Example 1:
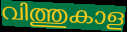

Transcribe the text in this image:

വിത്തുകാള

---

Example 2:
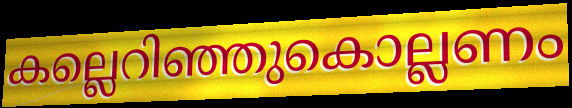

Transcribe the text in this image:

കല്ലെറിഞ്ഞുകൊല്ലണം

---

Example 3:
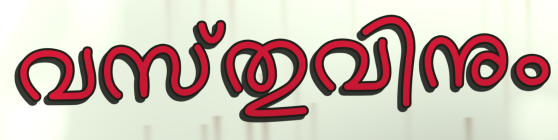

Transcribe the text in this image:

വസ്‌തുവിനും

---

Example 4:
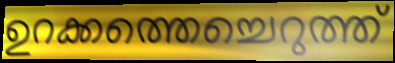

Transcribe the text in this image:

ഉറക്കത്തെച്ചെറുത്ത്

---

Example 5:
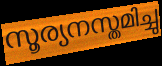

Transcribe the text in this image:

സൂര്യനസ്തമിച്ചു